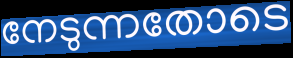
നേടുന്നതോടെ